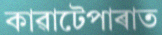
কাৱাটেপাৰাত